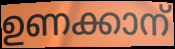
ഉണക്കാന്